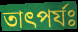
তাৎপর্যঃ